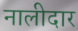
नालीदार